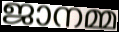
ജാനമ്മ